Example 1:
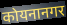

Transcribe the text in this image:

कोयनानगर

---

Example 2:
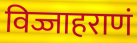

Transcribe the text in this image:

विज्जाहराणं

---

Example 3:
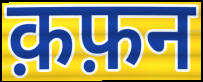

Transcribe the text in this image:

क़फ़न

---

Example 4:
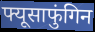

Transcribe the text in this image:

फ्यूसाफुंगिन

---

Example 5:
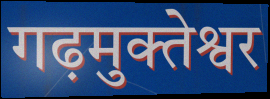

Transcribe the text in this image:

गढ़मुक्तेश्वर